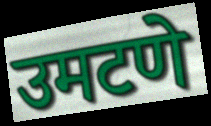
उमटणे